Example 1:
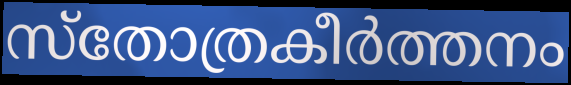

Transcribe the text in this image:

സ്തോത്രകീർത്തനം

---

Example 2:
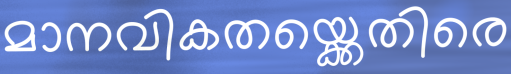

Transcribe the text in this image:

മാനവികതയ്ക്കെതിരെ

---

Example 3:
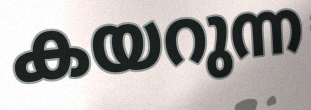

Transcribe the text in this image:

കയറുന്ന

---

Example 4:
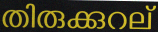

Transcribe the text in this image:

തിരുക്കുറല്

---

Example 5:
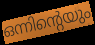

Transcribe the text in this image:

ഒന്നിന്റെയും